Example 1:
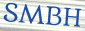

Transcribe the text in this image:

SMBH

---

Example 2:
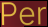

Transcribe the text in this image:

Per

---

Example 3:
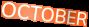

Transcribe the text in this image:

OCTOBER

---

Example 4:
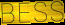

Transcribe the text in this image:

BESS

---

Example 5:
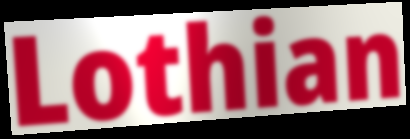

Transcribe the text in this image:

Lothian